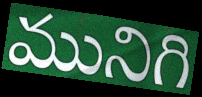
మునిగి